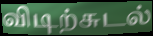
விடிற்சுடல்